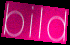
bild